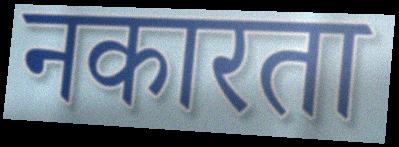
नकारता